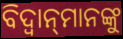
ବିଦ୍ଵାନ୍‌ମାନଙ୍କୁ